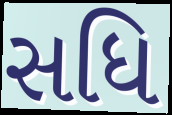
સધિ